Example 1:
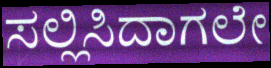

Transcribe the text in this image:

ಸಲ್ಲಿಸಿದಾಗಲೇ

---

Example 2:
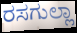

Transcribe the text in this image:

ರಸಗುಲ್ಲಾ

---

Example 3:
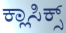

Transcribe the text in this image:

ಕ್ಲಾಸಿಕ್ಸ್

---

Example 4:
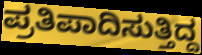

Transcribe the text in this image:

ಪ್ರತಿಪಾದಿಸುತ್ತಿದ್ದ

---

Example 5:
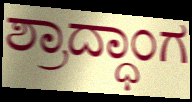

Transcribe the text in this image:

ಶ್ರಾದ್ಧಾಂಗ